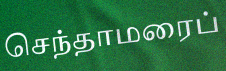
செந்தாமரைப்